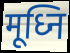
मूध्नि